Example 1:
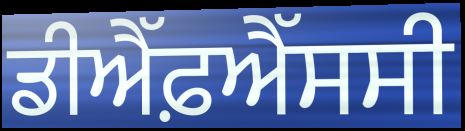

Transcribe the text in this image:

ਡੀਐੱਫ਼ਐੱਸਸੀ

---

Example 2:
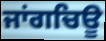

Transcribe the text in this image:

ਜਾਂਗਚਿਊ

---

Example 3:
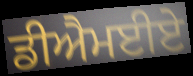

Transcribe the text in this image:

ਡੀਐਮਈਏ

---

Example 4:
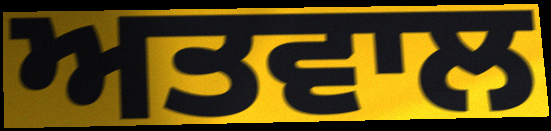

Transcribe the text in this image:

ਅਤਵਾਲ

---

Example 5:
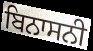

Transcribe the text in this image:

ਬਿਨਾਸਨੀ